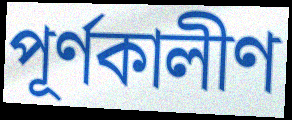
পূর্ণকালীণ